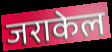
जराकेल